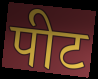
पीट